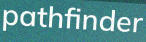
pathfinder